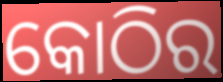
କୋଠିର